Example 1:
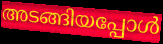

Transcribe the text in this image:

അടങ്ങിയപ്പോൾ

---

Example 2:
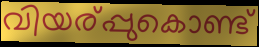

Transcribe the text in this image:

വിയര്പ്പുകൊണ്ട്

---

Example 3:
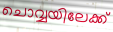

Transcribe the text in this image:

ചൊവ്വയിലേക്ക്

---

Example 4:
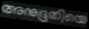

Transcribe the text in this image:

അനുഭൂതിയെ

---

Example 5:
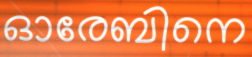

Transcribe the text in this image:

ഓരേബിനെ